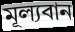
মূল্যবান